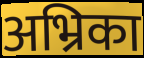
अभ्रिका